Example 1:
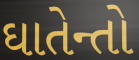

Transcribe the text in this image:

ઘાતેન્તો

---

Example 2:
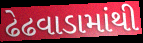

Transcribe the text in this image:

ઢેઢવાડામાંથી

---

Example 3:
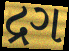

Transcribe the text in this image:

દ્રગ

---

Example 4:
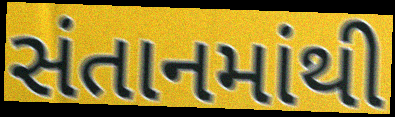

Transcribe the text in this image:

સંતાનમાંથી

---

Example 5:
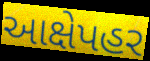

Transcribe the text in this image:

આક્ષેપહર